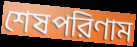
শেষপরিণাম